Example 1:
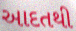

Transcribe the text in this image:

આદતથી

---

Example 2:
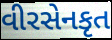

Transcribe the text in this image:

વીરસેનકૃત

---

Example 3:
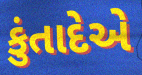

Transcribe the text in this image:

કુંતાદેએ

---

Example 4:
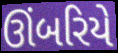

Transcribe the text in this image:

ઊંબરિયે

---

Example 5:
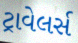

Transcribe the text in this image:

ટ્રાવેલર્સ